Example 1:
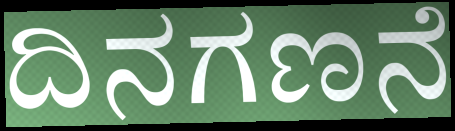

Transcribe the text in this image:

ದಿನಗಣನೆ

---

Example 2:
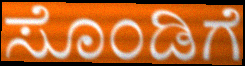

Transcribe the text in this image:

ಸೊಂಡಿಗೆ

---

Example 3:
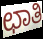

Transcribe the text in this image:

ಛಾತಿ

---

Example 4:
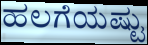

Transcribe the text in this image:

ಹಲಗೆಯಷ್ಟು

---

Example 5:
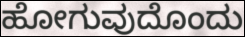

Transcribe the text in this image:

ಹೋಗುವುದೊಂದು